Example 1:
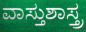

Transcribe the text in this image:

ವಾಸ್ತುಶಾಸ್ತ್ರ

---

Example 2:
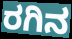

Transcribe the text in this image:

ರಗಿನ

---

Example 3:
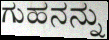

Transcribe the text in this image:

ಗುಹನನ್ನು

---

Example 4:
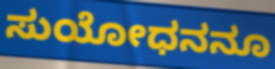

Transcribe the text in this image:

ಸುಯೋಧನನೂ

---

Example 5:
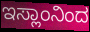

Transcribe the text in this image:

ಇಸ್ಲಾಂನಿಂದ